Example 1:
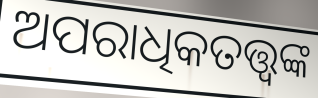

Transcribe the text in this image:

ଅପରାଧିକତତ୍ତ୍ୱଙ୍କ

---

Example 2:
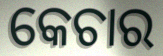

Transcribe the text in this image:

କେଚାର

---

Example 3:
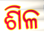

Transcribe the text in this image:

ଶିଳ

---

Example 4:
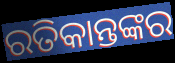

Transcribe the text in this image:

ରତିକାନ୍ତଙ୍କର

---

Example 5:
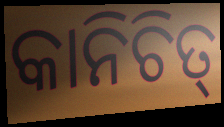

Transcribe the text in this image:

କାନିଚିତ୍